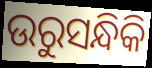
ଉରୁସନ୍ଧିକି